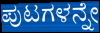
ಪುಟಗಳನ್ನೇ